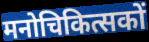
मनोचिकित्सकों